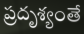
ప్రదృశ్యంతే